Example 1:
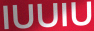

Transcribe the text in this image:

IUUIU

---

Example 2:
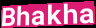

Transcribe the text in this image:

Bhakha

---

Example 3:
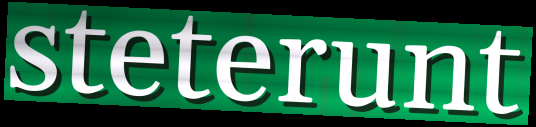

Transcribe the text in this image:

steterunt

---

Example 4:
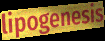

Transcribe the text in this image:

lipogenesis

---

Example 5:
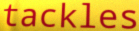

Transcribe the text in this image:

tackles